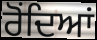
ਰੋਂਦਿਆਂ